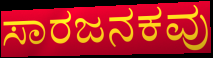
ಸಾರಜನಕವು